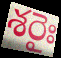
శరైః